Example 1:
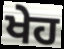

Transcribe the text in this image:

ਖੇਹ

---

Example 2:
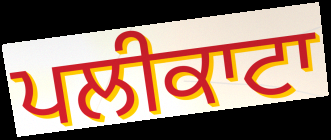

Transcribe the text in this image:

ਪਲੀਕਾਟਾ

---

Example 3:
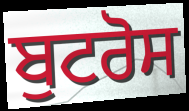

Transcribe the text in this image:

ਬੁਟਰੋਸ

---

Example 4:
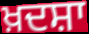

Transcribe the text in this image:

ਖ਼ਦਸ਼ਾ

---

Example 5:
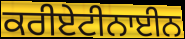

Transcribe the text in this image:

ਕਰੀਏਟੀਨਾਈਨ